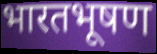
भारतभूषण